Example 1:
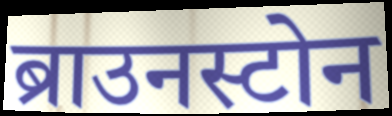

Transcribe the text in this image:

ब्राउनस्टोन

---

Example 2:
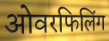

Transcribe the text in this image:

ओवरफिलिंग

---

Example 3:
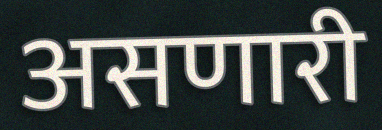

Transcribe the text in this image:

असणारी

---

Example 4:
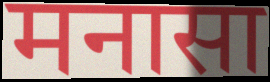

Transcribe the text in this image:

मनासा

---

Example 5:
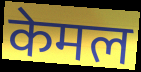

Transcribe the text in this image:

केमल